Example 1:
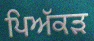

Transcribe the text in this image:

ਪਿਅੱਕੜ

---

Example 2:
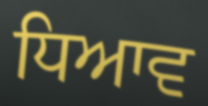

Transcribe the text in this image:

ਧਿਆਵ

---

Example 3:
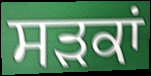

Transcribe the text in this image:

ਸਡ਼ਕਾਂ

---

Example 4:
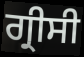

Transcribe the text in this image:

ਗ੍ਰੀਸੀ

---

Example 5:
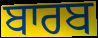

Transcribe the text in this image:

ਬਾਰਬ